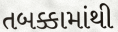
તબક્કામાંથી